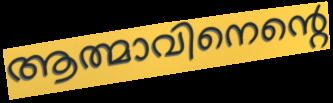
ആത്മാവിനെന്റെ